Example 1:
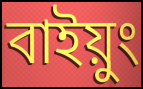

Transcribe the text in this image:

বাইয়ুং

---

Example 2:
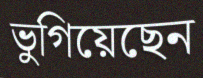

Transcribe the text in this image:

ভুগিয়েছেন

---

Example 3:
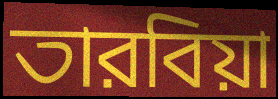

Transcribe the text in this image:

তারবিয়া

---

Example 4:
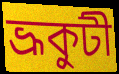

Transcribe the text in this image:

ভ্রূকুটী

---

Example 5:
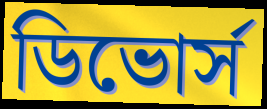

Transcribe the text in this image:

ডিভোর্স